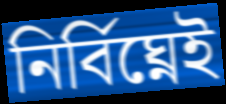
নির্বিঘ্নেই